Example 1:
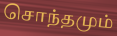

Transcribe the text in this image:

சொந்தமும்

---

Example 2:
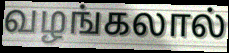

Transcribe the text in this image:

வழங்கலால்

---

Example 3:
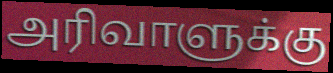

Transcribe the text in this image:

அரிவாளுக்கு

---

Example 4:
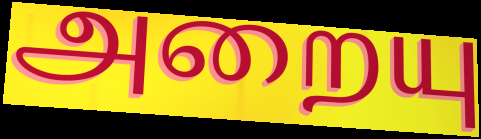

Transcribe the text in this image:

அறையு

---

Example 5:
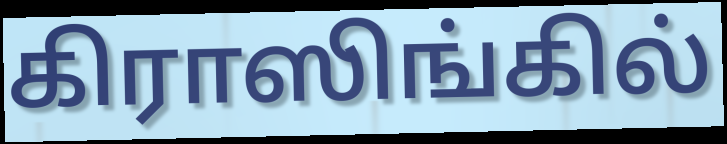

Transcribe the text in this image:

கிராஸிங்கில்